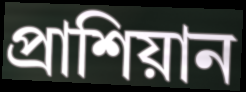
প্রাশিয়ান